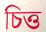
চিত্ত